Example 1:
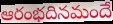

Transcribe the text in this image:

ఆరంభదినమందే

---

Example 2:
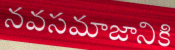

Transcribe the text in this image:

నవసమాజానికి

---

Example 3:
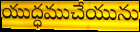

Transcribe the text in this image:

యుద్ధముచేయును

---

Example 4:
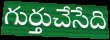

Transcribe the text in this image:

గుర్తుచేసేది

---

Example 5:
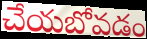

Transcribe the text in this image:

చేయబోవడం